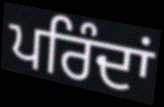
ਪਰਿੰਦਾਂ